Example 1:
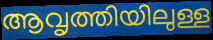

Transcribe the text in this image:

ആവൃത്തിയിലുള്ള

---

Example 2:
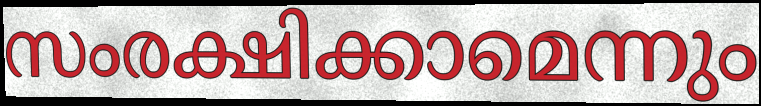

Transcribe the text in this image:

സംരക്ഷിക്കാമെന്നും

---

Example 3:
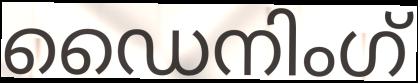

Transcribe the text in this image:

ഡൈനിംഗ്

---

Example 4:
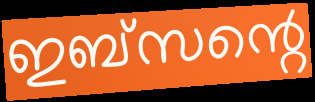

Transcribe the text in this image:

ഇബ്സന്റെ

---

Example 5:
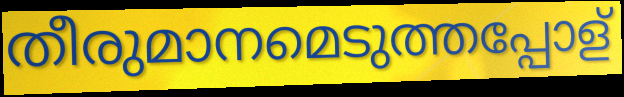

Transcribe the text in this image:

തീരുമാനമെടുത്തപ്പോള്